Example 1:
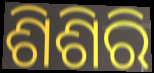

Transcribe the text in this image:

ଶିଶିରି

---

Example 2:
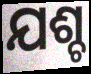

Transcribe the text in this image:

ଯଶ୍ଚ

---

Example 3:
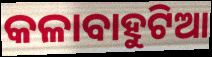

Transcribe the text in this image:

କଳାବାହୁଟିଆ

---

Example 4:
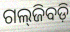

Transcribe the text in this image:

ଗଲ୍‌ଜିବଡ଼ି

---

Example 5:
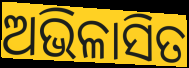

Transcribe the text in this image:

ଅଭିଳାସିତ